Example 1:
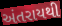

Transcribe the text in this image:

અંતરાયથી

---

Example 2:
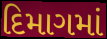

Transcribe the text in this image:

દિમાગમાં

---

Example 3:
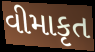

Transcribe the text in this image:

વીમાકૃત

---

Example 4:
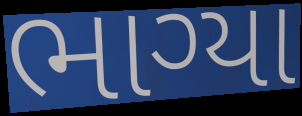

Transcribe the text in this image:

ભાગ્યા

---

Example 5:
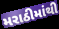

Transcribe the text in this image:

મરાઠીમાંથી